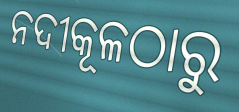
ନଦୀକୂଳଠାରୁ